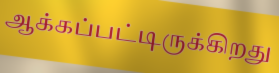
ஆக்கப்பட்டிருக்கிறது